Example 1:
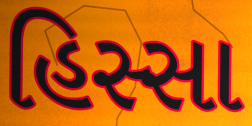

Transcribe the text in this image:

હિસ્સા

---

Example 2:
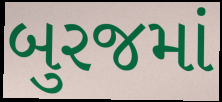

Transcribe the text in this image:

બુરજમાં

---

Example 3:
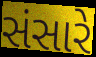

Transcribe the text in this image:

સંસારે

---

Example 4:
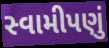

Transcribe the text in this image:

સ્વામીપણું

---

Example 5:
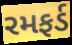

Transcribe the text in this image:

રમફર્ડ